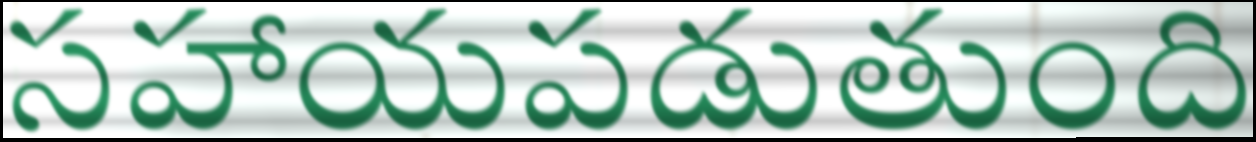
సహాయపడుతుంది